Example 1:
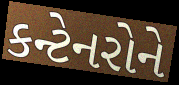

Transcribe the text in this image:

કન્ટેનરોને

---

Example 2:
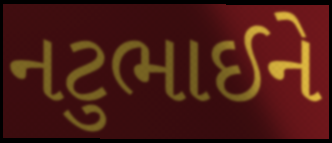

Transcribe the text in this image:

નટુભાઈને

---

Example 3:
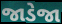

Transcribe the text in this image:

જાડેજા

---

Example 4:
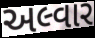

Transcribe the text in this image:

અલ્વાર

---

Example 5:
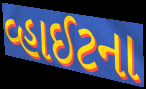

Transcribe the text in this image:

વ્હાઈટના